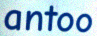
antoo